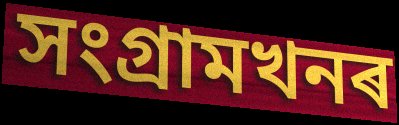
সংগ্ৰামখনৰ